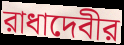
রাধাদেবীর